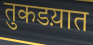
तुकडय़ात